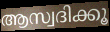
ആസ്വദിക്കൂ